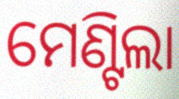
ମେଣ୍ଟିଲା